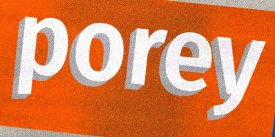
porey